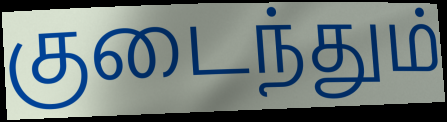
குடைந்தும்